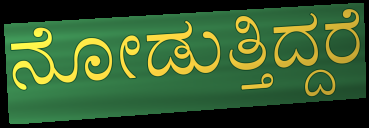
ನೋಡುತ್ತಿದ್ದರೆ